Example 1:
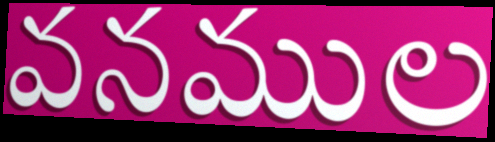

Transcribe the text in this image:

వనముల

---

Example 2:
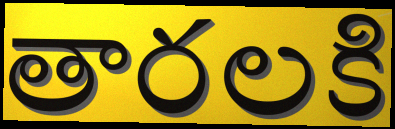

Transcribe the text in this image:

తారలకి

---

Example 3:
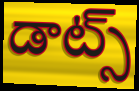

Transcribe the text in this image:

డాట్స్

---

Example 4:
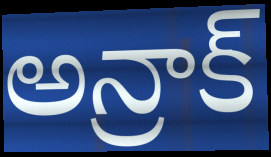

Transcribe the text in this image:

అన్రాక్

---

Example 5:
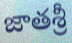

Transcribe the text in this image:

జాతశ్రీ